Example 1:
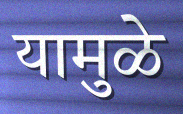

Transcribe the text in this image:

यामुळे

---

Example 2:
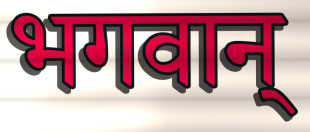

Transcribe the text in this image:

भगवान्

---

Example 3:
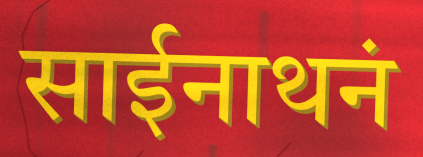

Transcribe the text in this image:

साईनाथनं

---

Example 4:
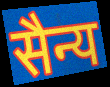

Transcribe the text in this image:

सैन्य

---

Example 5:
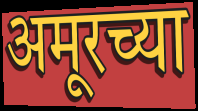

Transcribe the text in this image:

अमूरच्या